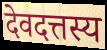
देवदत्तस्य